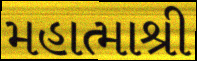
મહાત્માશ્રી